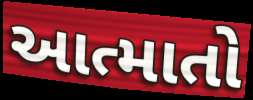
આત્માતો